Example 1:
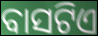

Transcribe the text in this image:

ବାସଟିଏ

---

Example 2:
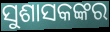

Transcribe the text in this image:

ସୁଶାସକଙ୍କର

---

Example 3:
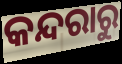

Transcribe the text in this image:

କନ୍ଦରାରୁ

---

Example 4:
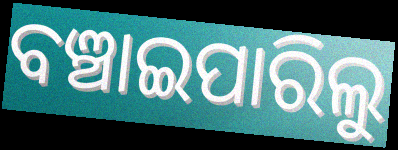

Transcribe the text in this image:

ବଞ୍ଚାଇପାରିଲୁ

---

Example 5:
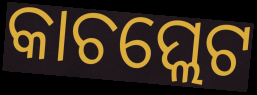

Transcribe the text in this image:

କାଚପ୍ଲେଟ